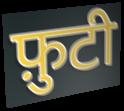
फ़ुटी